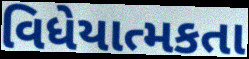
વિધેયાત્મકતા